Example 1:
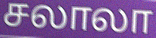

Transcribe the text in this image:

சலாலா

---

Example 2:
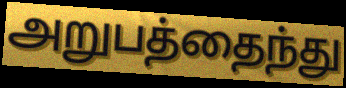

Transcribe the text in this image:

அறுபத்தைந்து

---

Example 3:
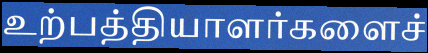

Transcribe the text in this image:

உற்பத்தியாளர்களைச்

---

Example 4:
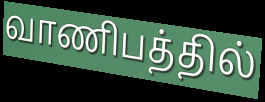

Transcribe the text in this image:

வாணிபத்தில்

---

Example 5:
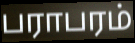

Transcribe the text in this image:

பராபரம்